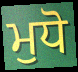
ਮੁਧੋ